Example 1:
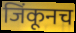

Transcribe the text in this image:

जिंकूनच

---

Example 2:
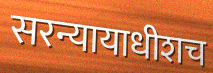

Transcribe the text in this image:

सरन्यायाधीशच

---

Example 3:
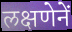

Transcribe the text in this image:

लक्षणेनें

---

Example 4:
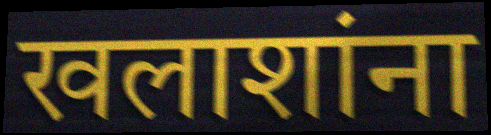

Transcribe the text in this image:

खलाशांना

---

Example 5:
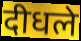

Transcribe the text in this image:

दीधले